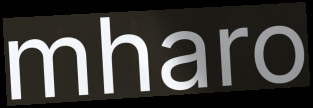
mharo